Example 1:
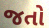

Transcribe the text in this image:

જતો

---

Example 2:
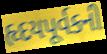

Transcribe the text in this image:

હૃદયપૂર્વકની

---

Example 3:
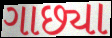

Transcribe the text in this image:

ગાછ્યા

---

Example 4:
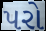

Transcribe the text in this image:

પરો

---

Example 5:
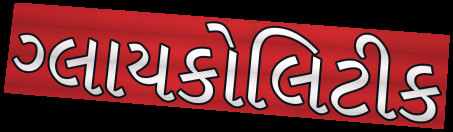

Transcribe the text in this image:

ગ્લાયકોલિટીક